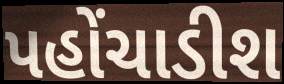
પહોંચાડીશ